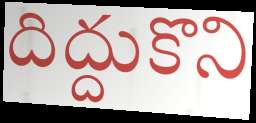
దిద్దుకొని